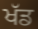
ਖੱਡ